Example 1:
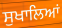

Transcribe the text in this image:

ਸੁਖਾਲਿਆਂ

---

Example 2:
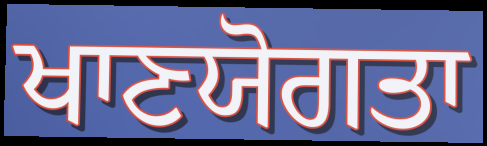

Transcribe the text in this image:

ਖਾਣਯੋਗਤਾ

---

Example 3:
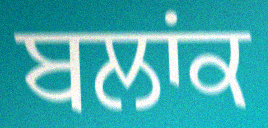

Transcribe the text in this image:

ਬਲਾਂਕ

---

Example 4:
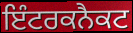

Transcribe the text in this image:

ਇੰਟਰਕਨੈਕਟ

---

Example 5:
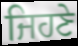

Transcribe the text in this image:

ਜਿਹਣੇ